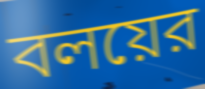
বলয়ের